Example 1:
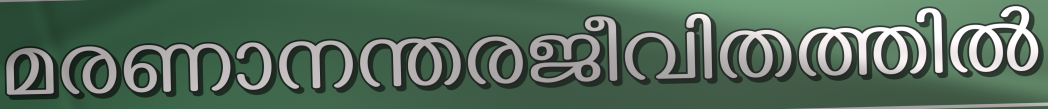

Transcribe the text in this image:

മരണാനന്തരജീവിതത്തിൽ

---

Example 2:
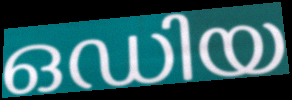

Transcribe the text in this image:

ഒഡിയ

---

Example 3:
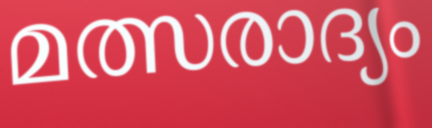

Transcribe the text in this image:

മത്സരാദ്യം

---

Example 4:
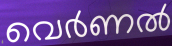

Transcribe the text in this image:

വെർണൽ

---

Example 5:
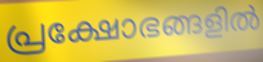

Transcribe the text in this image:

പ്രക്ഷോഭങ്ങളിൽ